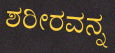
ಶರೀರವನ್ನ